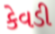
કેવડી